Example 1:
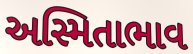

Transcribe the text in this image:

અસ્મિતાભાવ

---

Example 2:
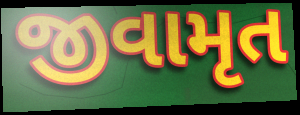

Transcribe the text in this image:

જીવામૃત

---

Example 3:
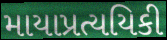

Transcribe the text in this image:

માયાપ્રત્યયિકી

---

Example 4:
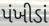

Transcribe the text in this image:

પંખીડાં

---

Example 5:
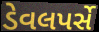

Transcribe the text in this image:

ડેવલપર્સે